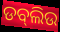
ଡବ୍‍ଲିଉ